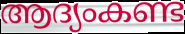
ആദ്യംകണ്ട